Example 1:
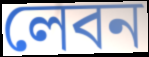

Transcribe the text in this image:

লেবন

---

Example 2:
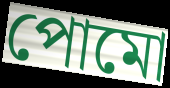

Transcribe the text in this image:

পোমো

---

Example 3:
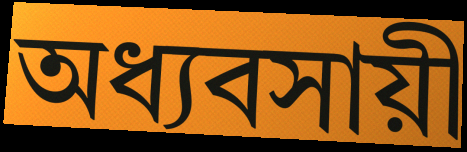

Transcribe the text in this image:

অধ্যবসায়ী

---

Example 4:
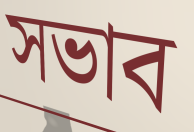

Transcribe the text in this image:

সভাব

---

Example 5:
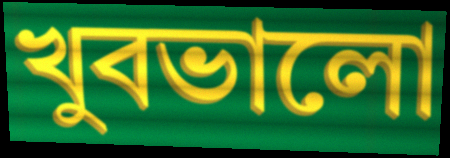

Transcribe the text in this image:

খুবভালো